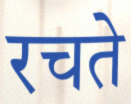
रचते